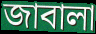
জাবালা